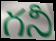
గనీ